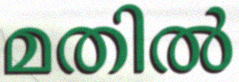
മതിൽ